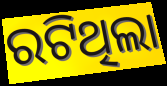
ରଟିଥିଲା